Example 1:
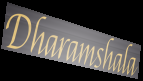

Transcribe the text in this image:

Dharamshala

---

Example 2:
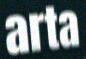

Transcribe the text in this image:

arta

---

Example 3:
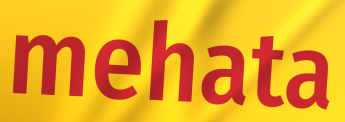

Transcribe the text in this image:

mehata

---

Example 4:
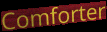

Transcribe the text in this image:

Comforter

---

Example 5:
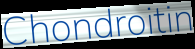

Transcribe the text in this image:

Chondroitin